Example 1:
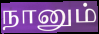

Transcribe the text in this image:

நானும்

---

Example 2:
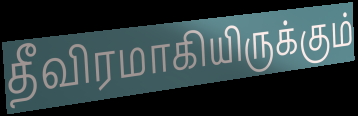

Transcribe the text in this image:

தீவிரமாகியிருக்கும்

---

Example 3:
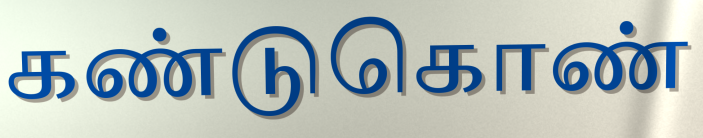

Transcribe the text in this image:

கண்டுகொண்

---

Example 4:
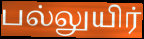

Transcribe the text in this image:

பல்லுயிர்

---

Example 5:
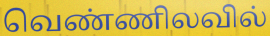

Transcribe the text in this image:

வெண்ணிலவில்